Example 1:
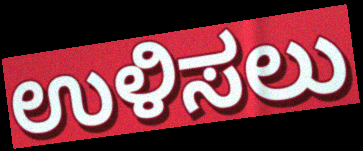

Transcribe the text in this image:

ಉಳಿಸಲು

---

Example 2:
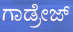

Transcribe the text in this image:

ಗಾಡ್ರೇಜ್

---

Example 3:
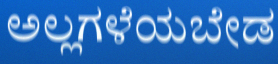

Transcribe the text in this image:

ಅಲ್ಲಗಳೆಯಬೇಡ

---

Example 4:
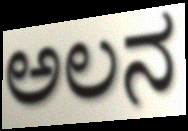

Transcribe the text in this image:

ಅಲನ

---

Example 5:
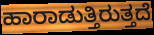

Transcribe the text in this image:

ಹಾರಾಡುತ್ತಿರುತ್ತದೆ